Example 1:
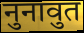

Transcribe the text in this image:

नुनावुत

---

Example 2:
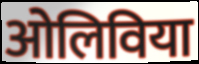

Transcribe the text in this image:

ओलिविया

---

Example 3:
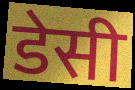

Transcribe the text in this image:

डेसी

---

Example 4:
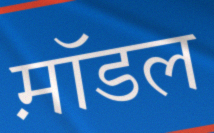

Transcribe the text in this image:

म़ॉडल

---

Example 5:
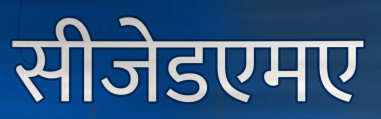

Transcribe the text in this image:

सीजेडएमए